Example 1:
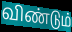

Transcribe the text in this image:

விண்டும்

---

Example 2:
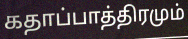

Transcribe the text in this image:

கதாப்பாத்திரமும்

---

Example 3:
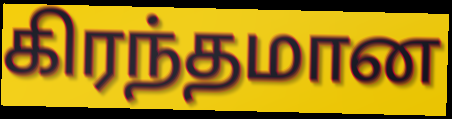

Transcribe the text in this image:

கிரந்தமான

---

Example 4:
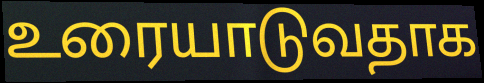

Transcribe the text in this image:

உரையாடுவதாக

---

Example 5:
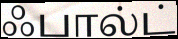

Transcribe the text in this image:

ஃபால்ட்